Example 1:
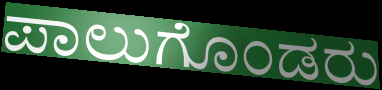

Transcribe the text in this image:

ಪಾಲುಗೊಂಡರು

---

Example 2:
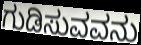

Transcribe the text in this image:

ಗುಡಿಸುವವನು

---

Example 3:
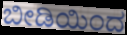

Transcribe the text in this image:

ಬೀಡಿಯಿಂದ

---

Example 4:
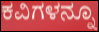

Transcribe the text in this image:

ಕವಿಗಳನ್ನೂ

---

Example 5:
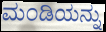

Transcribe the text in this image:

ಮಂಡಿಯನ್ನು